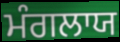
ਮੰਗਲਾਯ